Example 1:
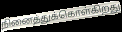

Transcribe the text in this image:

நினைத்துக்கொள்கிறது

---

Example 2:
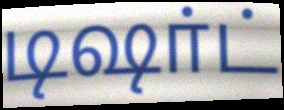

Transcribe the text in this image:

டிஷர்ட்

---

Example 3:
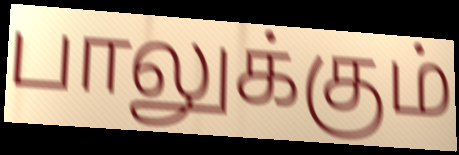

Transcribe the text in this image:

பாலுக்கும்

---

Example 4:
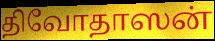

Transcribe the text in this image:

திவோதாஸன்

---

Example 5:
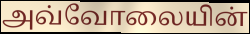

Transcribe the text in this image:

அவ்வோலையின்